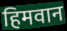
हिमवान